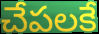
చేపలకే